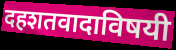
दहशतवादाविषयी